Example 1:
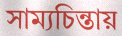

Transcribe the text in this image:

সাম্যচিন্তায়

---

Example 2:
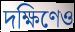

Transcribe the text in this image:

দক্ষিণেও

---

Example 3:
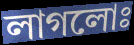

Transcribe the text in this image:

লাগলোঃ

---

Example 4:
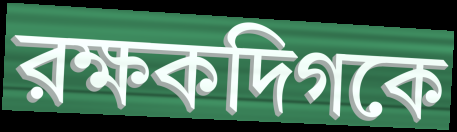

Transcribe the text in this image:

রক্ষকদিগকে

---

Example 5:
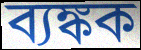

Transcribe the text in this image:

ব্যঙ্কক